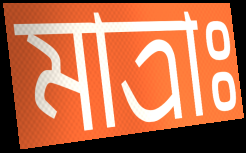
মাত্রাঃ